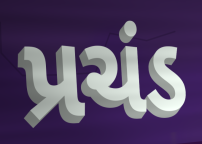
પ્રચંડ